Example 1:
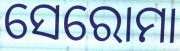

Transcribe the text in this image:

ସେରୋମା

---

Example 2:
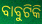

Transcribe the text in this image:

ବାବୁଟିକି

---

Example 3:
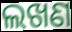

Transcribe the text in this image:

ଲଖଣ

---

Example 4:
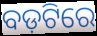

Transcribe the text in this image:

ବଡ଼ଟିରେ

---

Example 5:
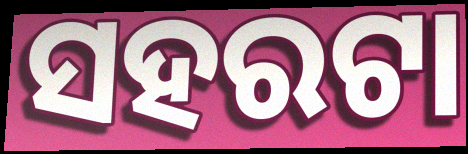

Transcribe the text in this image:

ସହରଟା